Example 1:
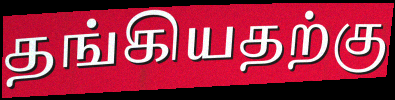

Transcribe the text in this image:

தங்கியதற்கு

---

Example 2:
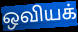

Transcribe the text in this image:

ஒவியக்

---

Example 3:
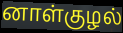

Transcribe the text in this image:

னாள்குழல்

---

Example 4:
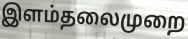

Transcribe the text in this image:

இளம்தலைமுறை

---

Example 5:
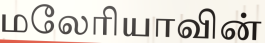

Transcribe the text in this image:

மலேரியாவின்